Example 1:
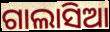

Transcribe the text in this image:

ଗାଲାସିଆ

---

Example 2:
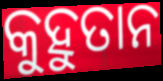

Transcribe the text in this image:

କୁହୁତାନ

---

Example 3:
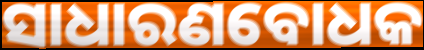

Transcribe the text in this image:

ସାଧାରଣବୋଧକ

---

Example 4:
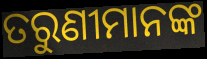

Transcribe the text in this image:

ତରୁଣୀମାନଙ୍କ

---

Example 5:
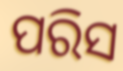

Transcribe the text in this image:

ପରିସ